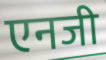
एनजी